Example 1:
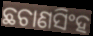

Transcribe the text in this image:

ଛଚାଣସିଂହ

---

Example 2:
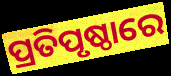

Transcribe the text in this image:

ପ୍ରତିପୃଷ୍ଠାରେ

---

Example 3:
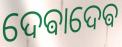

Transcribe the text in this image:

ଦେଵାଦେଵ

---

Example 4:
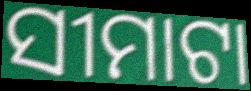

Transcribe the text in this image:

ସୀମାଟା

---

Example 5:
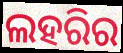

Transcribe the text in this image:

ଲହରିର